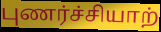
புணர்ச்சியாற்